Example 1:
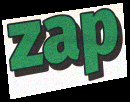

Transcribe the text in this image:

zap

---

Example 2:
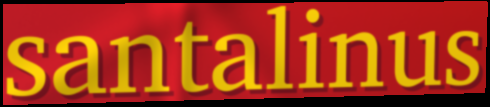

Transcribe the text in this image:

santalinus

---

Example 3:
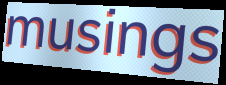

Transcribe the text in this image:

musings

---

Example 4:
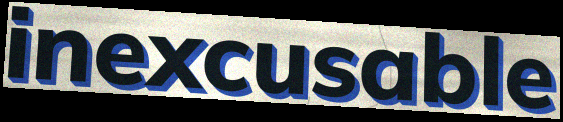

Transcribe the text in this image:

inexcusable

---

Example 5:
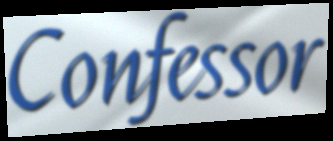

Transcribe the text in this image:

Confessor